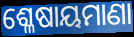
ଶ୍ଳେଷାୟମାଣା